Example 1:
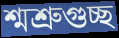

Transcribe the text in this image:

শ্মশ্রুগুচ্ছ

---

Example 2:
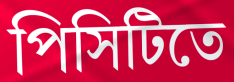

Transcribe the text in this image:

পিসিটিতে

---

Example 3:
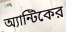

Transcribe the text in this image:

অ্যান্টিকের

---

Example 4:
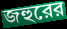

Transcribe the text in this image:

জহুরের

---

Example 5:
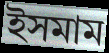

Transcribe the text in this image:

ইসমাম